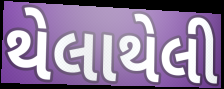
થેલાથેલી